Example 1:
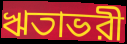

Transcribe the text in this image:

ঋতাভরী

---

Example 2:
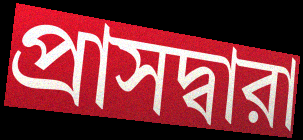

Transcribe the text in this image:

প্রাসদ্বারা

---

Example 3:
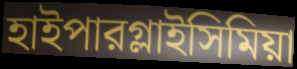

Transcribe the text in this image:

হাইপারগ্লাইসিমিয়া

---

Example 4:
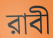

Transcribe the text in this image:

রাবী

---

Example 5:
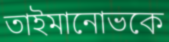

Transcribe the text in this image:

তাইমানোভকে